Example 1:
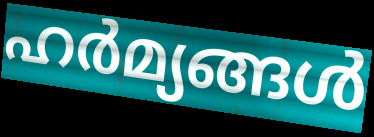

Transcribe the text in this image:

ഹർമ്യങ്ങൾ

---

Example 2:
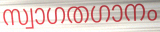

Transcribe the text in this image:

സ്വാഗതഗാനം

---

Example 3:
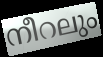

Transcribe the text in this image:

നീറലും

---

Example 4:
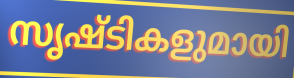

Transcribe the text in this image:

സൃഷ്ടികളുമായി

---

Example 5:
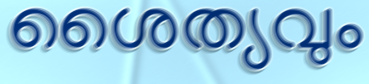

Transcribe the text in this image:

ശൈത്യവും